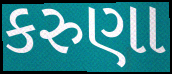
કરુણા